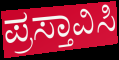
ಪ್ರಸ್ತಾವಿಸಿ